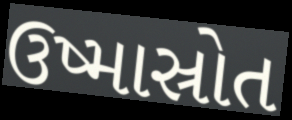
ઉષ્માસ્રોત